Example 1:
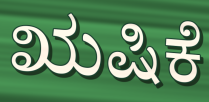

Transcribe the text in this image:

ಋಷಿಕೆ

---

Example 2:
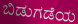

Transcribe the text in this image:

ಬಿಡುಗಡೆಯ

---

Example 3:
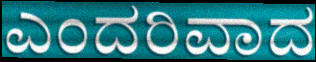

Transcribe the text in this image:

ಎಂದರಿವಾದ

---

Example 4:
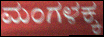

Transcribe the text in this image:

ಮಂಗಳಕ್ಕ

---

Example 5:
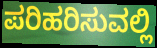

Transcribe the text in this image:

ಪರಿಹರಿಸುವಲ್ಲಿ